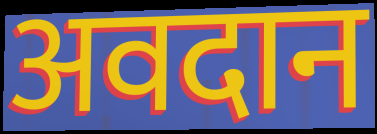
अवदान